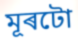
মূৰটো